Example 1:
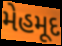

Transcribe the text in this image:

મેહમૂદ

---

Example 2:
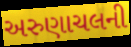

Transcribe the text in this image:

અરુણાચલની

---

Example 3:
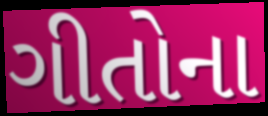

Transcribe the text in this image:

ગીતોના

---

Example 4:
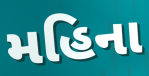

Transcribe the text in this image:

મહિના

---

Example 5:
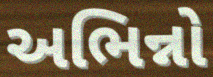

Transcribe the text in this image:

અભિન્નો